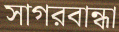
সাগরবান্ধা